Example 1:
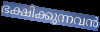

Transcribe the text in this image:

ഭക്ഷിക്കുന്നവൻ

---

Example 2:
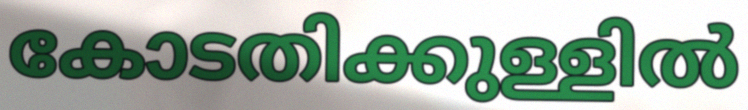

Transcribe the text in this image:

കോടതിക്കുള്ളിൽ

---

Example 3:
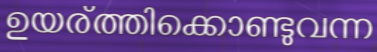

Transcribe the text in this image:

ഉയര്ത്തിക്കൊണ്ടുവന്ന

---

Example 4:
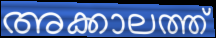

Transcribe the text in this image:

അക്കാലത്ത്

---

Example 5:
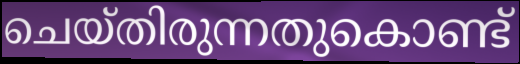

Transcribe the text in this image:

ചെയ്തിരുന്നതുകൊണ്ട്